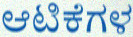
ಆಟಿಕೆಗಳ